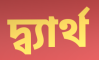
দ্ব্যার্থ